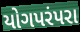
યોગપરંપરા